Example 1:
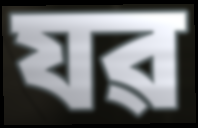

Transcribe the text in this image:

যৱ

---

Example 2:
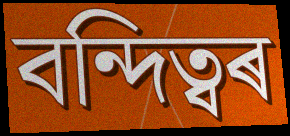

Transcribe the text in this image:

বন্দিত্বৰ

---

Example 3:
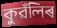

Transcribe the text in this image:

কুৱঁলিৰ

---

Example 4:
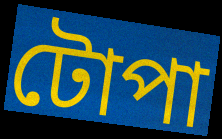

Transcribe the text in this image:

টোপা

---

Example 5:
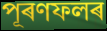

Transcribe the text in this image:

পূৰণফলৰ